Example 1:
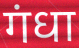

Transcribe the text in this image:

गंधा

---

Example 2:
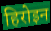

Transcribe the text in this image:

हिरोइन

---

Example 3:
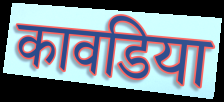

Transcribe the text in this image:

कावडिया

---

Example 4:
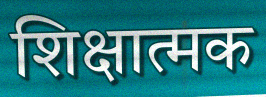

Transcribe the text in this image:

शिक्षात्मक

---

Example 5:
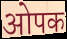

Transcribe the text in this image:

ओपक